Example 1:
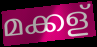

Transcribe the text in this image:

മക്കള്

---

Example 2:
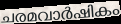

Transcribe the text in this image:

ചരമവാർഷികം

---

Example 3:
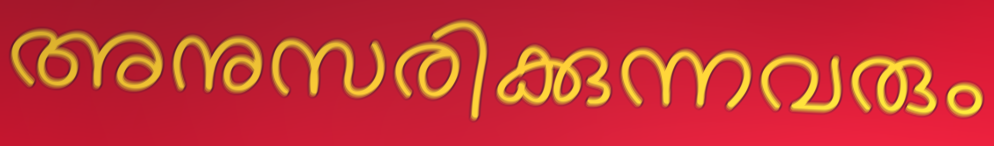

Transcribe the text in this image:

അനുസരിക്കുന്നവരും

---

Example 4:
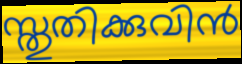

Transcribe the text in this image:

സ്തുതിക്കുവിൻ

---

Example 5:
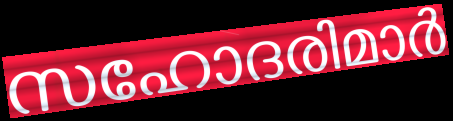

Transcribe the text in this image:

സഹോദരിമാർ